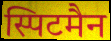
स्पिटमैन